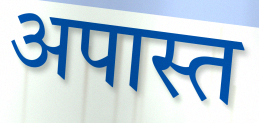
अपास्त